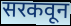
सरकवून